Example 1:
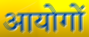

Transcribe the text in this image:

आयोगों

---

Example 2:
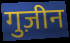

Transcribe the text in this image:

गुज़ीन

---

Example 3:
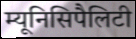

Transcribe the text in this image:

म्यूनिसिपैलिटी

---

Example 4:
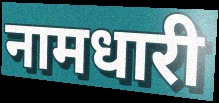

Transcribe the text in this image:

नामधारी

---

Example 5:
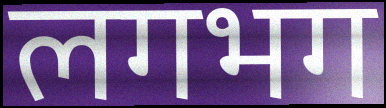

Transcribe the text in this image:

लगभग